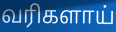
வரிகளாய்